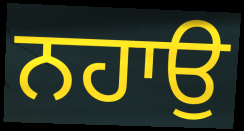
ਨਹਾਉ